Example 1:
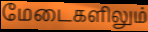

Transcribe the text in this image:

மேடைகளிலும்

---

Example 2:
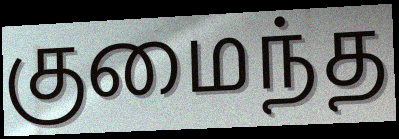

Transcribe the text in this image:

குமைந்த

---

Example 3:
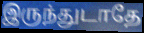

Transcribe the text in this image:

இருந்துடாதே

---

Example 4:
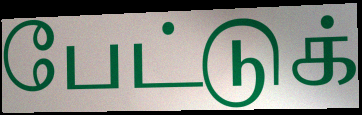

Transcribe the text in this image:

பேட்டுக்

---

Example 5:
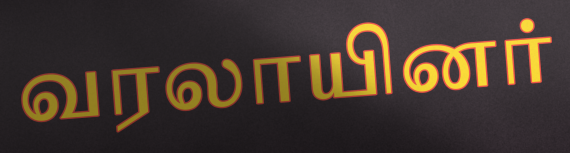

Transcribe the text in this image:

வரலாயினர்